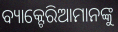
ବ୍ୟାକ୍ଟେରିଆମାନଙ୍କୁ